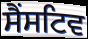
ਸੈਂਸਟਿਵ